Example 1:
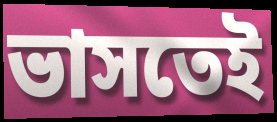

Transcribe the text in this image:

ভাসতেই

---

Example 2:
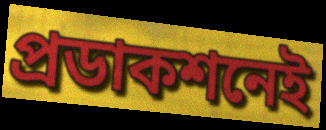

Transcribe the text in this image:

প্রডাকশনেই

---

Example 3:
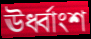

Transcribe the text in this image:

ঊর্ধ্বাংশ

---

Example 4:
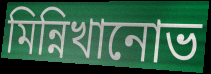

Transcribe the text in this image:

মিন্নিখানোভ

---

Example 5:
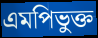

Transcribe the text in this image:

এমপিভুক্ত